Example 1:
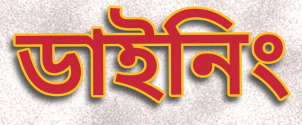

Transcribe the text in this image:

ডাইনিং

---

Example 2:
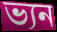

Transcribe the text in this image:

ভ্যন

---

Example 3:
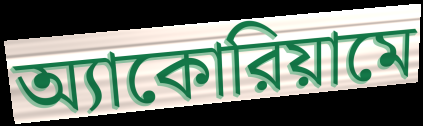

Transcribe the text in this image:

অ্যাকোরিয়ামে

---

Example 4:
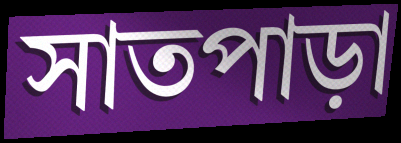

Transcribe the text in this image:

সাতপাড়া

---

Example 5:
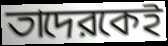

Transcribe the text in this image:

তাদেরকেই